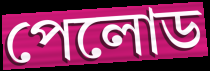
পেলোড